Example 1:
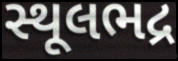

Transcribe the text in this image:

સ્થૂલભદ્ર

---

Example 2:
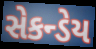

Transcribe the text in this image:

સેકન્ડેય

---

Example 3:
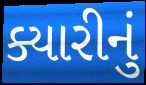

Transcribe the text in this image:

ક્યારીનું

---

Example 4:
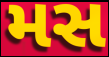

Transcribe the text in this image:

મસ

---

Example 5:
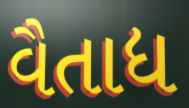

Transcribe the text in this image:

વૈતાદ્ય